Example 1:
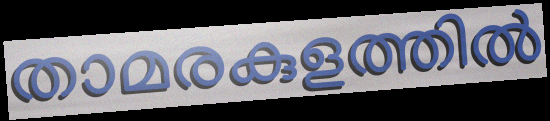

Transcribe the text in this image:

താമരകുളത്തിൽ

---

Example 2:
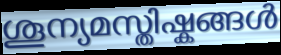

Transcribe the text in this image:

ശൂന്യമസ്തിഷ്കങ്ങൾ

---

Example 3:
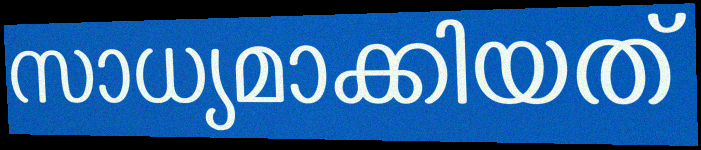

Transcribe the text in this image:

സാധ്യമാക്കിയത്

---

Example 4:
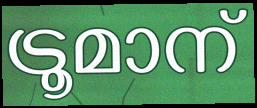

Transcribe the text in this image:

ട്രൂമാന്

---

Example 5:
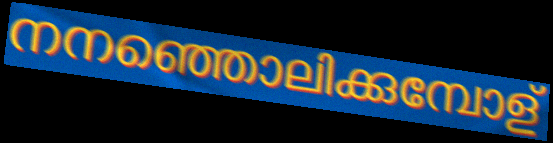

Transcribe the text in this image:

നനഞ്ഞൊലിക്കുമ്പോള്